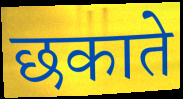
छकाते